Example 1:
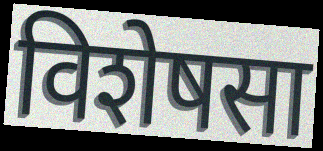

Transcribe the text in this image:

विशेषसा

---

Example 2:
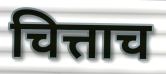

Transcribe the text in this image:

चित्ताच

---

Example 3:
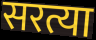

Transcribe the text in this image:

सरत्या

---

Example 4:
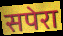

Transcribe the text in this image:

सपेरा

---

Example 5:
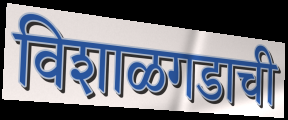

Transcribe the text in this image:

विशाळगडाची